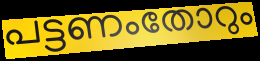
പട്ടണംതോറും